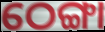
ଠେଙ୍ଗା